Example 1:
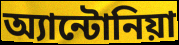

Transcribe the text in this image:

অ্যান্টোনিয়া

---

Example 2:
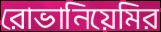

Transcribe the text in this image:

রোভানিয়েমির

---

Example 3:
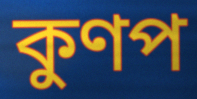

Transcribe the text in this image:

কুণপ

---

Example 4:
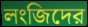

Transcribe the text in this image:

লংজিদের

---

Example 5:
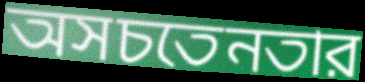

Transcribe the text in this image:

অসচতেনতার